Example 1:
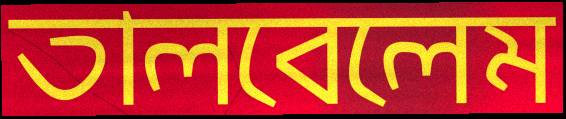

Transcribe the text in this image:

তালবেলেম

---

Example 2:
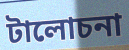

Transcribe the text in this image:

টালোচনা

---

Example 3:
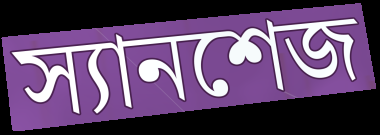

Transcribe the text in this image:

স্যানশেজ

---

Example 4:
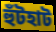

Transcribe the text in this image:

হুঁটহাট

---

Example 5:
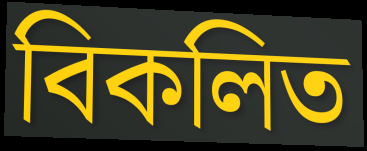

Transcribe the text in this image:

বিকলিত